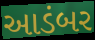
આડંબર